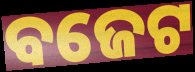
ବଜେଟ